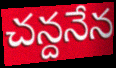
చన్దనేన